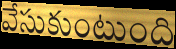
వేసుకుంటుంది